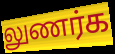
லுணர்க